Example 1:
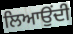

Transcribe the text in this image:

ਲਿਆਉਂਦੀ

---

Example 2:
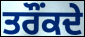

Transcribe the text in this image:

ਤਰੌਂਕਦੇ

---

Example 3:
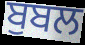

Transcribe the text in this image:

ਬੁਬਲ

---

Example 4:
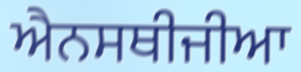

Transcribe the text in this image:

ਐਨਸਥੀਜੀਆ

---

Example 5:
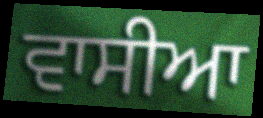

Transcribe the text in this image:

ਵਾਸੀਆ